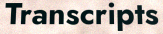
Transcripts